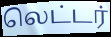
லெட்டர்